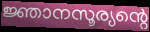
ജ്ഞാനസൂര്യന്റെ